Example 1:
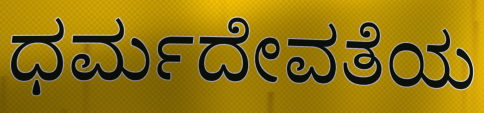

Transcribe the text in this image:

ಧರ್ಮದೇವತೆಯ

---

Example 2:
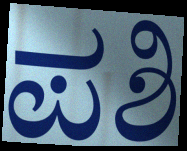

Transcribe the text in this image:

ಪಶಿ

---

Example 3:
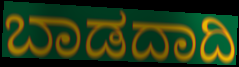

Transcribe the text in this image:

ಬಾಡದಾದಿ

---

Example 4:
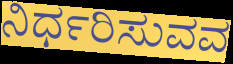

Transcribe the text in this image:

ನಿರ್ಧರಿಸುವವ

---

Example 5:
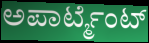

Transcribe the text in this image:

ಅಪಾರ್ಟ್ಮೆಂಟ್